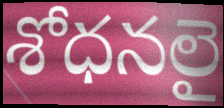
శోధనలై